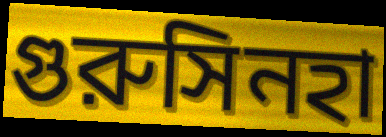
গুরুসিনহা